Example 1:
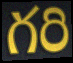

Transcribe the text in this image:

గరి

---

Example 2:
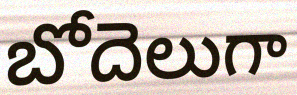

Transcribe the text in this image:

బోదెలుగా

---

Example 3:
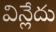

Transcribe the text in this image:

విన్లేదు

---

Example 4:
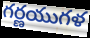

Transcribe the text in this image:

గర్ణయుగళ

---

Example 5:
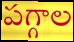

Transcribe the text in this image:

పగ్గాల